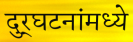
दुर्घटनांमध्ये